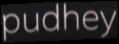
pudhey